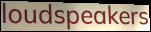
loudspeakers